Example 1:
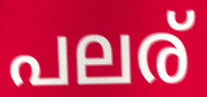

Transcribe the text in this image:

പലര്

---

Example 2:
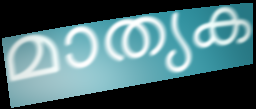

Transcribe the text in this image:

മാത്യക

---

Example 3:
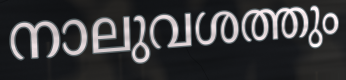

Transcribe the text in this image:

നാലുവശത്തും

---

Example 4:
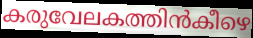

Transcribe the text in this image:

കരുവേലകത്തിൻകീഴെ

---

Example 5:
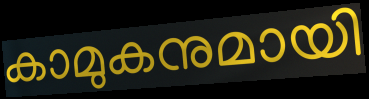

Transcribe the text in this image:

കാമുകനുമായി